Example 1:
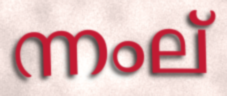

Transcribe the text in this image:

ന്നംല്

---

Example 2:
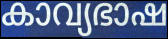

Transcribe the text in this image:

കാവ്യഭാഷ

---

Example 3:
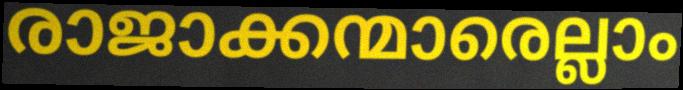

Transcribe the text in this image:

രാജാക്കന്മാരെല്ലാം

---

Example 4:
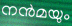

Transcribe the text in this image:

നൻമയും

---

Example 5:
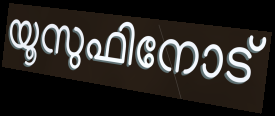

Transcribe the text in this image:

യൂസുഫിനോട്